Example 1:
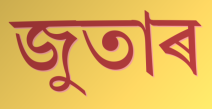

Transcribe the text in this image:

জুতাৰ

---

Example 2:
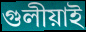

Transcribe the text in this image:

গুলীয়াই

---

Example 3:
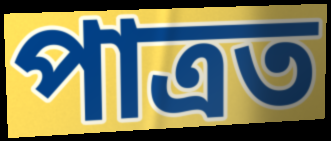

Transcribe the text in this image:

পাত্ৰত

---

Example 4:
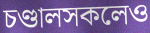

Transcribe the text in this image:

চণ্ডালসকলেও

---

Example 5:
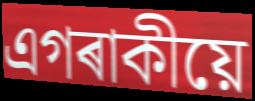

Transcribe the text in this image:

এগৰাকীয়ে